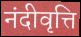
नंदीवृत्ति